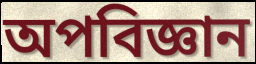
অপবিজ্ঞান